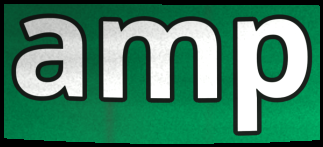
amp